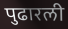
पुढारली